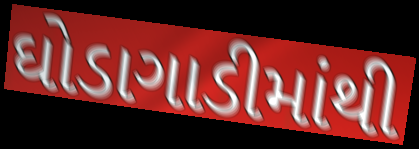
ઘોડાગાડીમાંથી